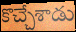
కొచ్చేశాడు